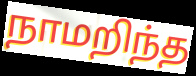
நாமறிந்த